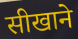
सीखाने